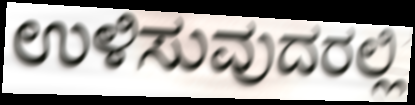
ಉಳಿಸುವುದರಲ್ಲಿ